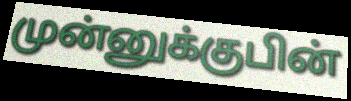
முன்னுக்குபின்